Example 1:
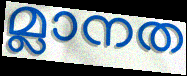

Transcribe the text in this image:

മ്ലാനത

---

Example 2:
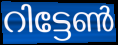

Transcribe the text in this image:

റിട്ടേൺ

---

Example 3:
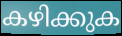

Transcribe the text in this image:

കഴിക്കുക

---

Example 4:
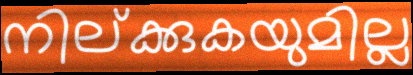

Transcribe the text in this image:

നില്ക്കുകയുമില്ല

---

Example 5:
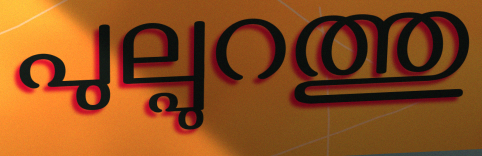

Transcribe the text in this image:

പുല്പുറത്തു